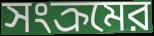
সংক্রমের